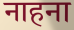
नाहना